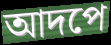
আদপে